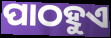
ପାଠହୁଏ